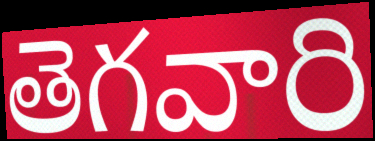
తెగవారి